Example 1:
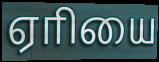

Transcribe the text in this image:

ஏரியை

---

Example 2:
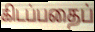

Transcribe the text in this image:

கிடப்பதைப்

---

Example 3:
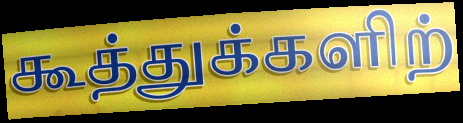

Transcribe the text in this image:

கூத்துக்களிற்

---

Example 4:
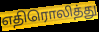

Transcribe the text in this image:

எதிரொலித்து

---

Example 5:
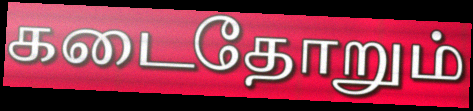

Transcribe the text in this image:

கடைதோறும்